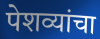
पेशव्यांचा